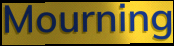
Mourning